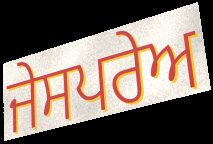
ਜੇਸਪਰੇਅ